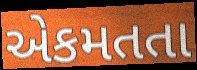
એકમતતા